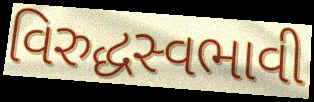
વિરુદ્ધસ્વભાવી